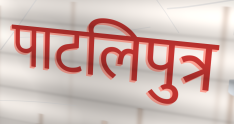
पाटलिपुत्र